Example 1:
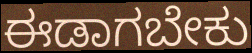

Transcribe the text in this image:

ಈಡಾಗಬೇಕು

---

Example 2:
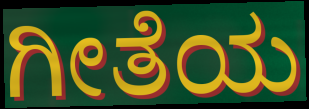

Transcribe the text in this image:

ಗೀತೆಯ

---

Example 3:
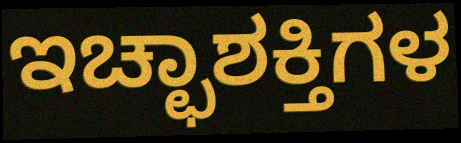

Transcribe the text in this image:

ಇಚ್ಛಾಶಕ್ತಿಗಳ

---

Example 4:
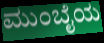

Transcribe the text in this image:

ಮುಂಬೈಯ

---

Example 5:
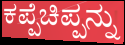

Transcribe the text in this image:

ಕಪ್ಪೆಚಿಪ್ಪನ್ನು